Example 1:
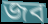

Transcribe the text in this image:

জব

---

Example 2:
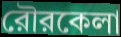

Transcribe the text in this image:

রৌরকেলা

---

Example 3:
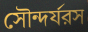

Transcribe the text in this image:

সৌন্দর্যরস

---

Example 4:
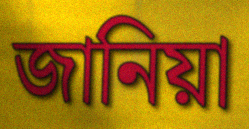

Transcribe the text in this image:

জানিয়া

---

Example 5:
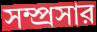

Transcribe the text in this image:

সম্প্রসার